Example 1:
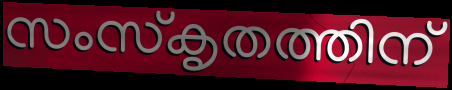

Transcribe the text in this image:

സംസ്കൃതത്തിന്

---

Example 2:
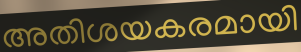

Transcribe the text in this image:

അതിശയകരമായി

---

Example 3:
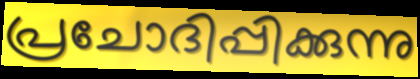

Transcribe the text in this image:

പ്രചോദിപ്പിക്കുന്നു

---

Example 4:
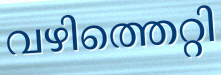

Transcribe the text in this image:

വഴിത്തെറ്റി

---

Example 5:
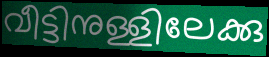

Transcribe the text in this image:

വീട്ടിനുള്ളിലേക്കു